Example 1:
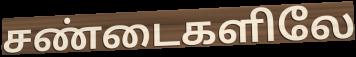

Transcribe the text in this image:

சண்டைகளிலே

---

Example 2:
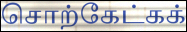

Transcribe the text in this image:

சொற்கேட்கக்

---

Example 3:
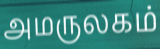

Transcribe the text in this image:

அமருலகம்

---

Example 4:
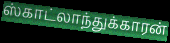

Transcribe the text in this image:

ஸ்காட்லாந்துக்காரன்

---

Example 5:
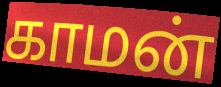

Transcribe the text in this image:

காமன்